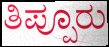
ತಿಪ್ಪೂರು